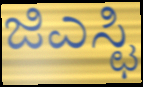
ಜಿಎಸ್ಟಿ